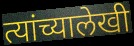
त्यांच्यालेखी